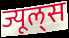
ज्यूल्स